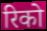
रिको